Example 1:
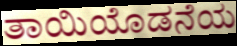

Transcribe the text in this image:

ತಾಯಿಯೊಡನೆಯ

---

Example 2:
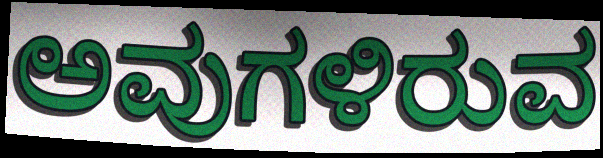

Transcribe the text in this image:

ಅವುಗಳಿರುವ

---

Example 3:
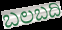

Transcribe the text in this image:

ಬಲಬದಿ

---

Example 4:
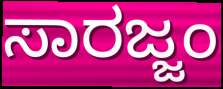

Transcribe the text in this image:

ಸಾರಜ್ಜಂ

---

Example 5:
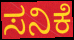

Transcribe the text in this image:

ಸನಿಕೆ